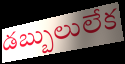
డబ్బులులేక